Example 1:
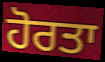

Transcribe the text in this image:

ਹੋਰਤਾ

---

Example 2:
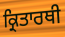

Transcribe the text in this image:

ਕ੍ਰਿਤਾਰਥੀ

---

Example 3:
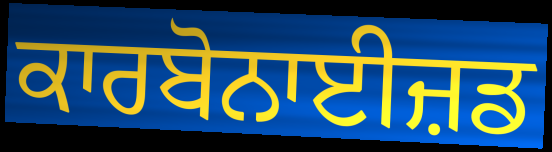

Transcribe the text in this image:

ਕਾਰਬੋਨਾਈਜ਼ਡ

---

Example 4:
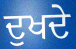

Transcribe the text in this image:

ਦੁਖਦੇ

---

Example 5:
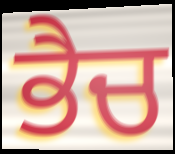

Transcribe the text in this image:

ਭੈਚ